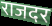
राजदर